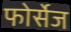
फोर्सेज